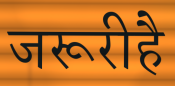
जरूरीहै